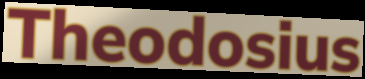
Theodosius